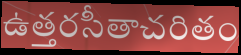
ఉత్తరసీతాచరితం